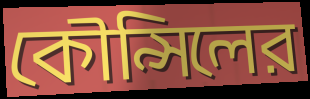
কৌন্সিলের